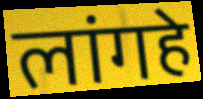
लांगहे